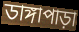
ডাঙ্গাপাড়া